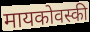
मायकोवस्की